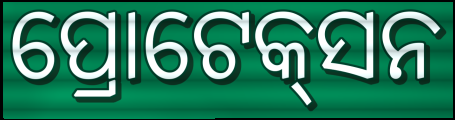
ପ୍ରୋଟେକ୍‌ସନ